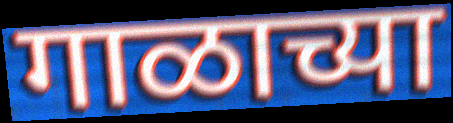
गाळाच्या